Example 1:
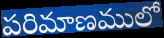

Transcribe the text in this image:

పరిమాణములో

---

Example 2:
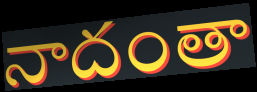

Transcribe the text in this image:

నాదంతా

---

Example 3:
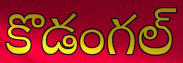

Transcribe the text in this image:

కొడంగల్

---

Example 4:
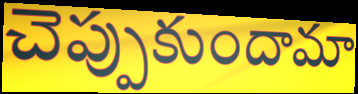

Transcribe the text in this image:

చెప్పుకుందామా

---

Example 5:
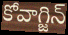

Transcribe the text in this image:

కోవాగ్జిన్